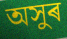
অসুৰ